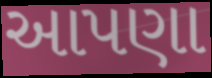
આપણા